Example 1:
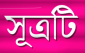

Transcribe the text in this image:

সূত্রটি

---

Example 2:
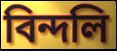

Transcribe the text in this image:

বিন্দলি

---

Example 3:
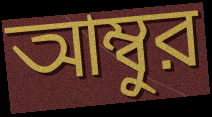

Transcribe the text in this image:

আম্বুর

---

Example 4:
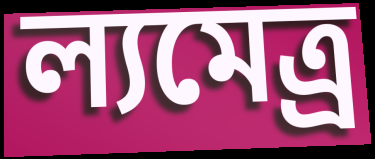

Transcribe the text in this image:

ল্যমেত্র্র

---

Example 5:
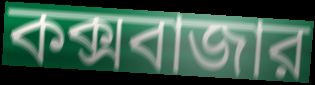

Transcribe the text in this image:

কক্সবাজার